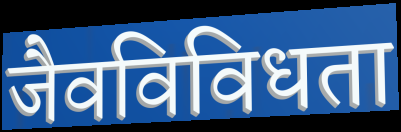
जैवविविधता